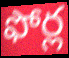
ఫోర్ల